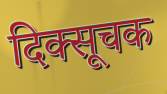
दिक्सूचक